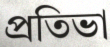
প্ৰতিভা